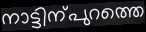
നാട്ടിന്പുറത്തെ